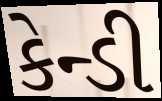
કેન્ડી